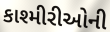
કાશ્મીરીઓની